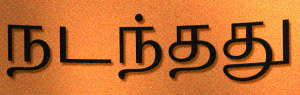
நடந்தது